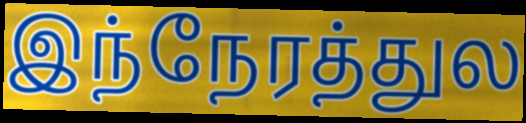
இந்நேரத்துல